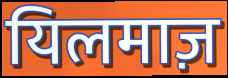
यिलमाज़